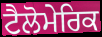
ਟੈਲੋਮੇਰਿਕ